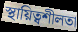
স্থায়িত্বশীলতা